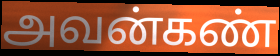
அவன்கண்